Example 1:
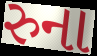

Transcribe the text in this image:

રુના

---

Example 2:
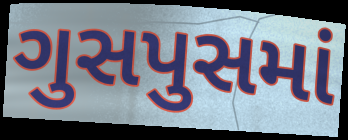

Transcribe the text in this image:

ગુસપુસમાં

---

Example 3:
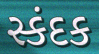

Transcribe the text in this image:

સ્કંદક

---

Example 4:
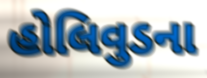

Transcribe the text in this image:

હોલિવુડના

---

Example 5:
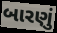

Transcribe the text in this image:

બારણું